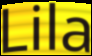
Lila